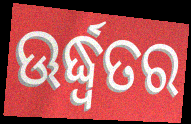
ଊର୍ଦ୍ଧ୍ଵତର